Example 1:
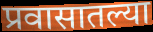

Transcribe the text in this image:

प्रवासातल्या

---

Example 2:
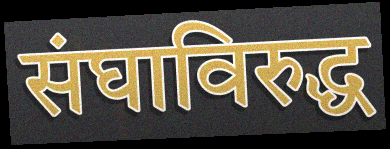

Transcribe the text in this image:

संघाविरुद्ध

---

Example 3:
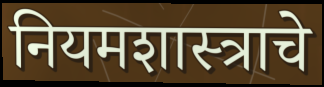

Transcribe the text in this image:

नियमशास्त्राचे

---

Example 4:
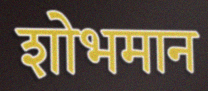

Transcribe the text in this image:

शोभमान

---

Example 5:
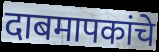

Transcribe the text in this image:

दाबमापकांचे